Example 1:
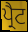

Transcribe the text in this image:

ਪ੍ਰੈਟ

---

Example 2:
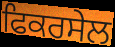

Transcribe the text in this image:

ਫਿਕਰਸੇਲ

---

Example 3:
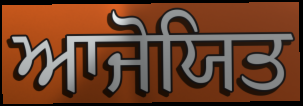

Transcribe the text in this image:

ਆਜੋਯਿਤ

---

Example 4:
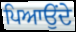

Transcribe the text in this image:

ਪਿਆਉਂਦੇ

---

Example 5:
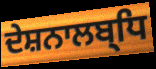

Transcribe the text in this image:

ਦੇਸ਼ਨਾਲਬ੍ਧਿ